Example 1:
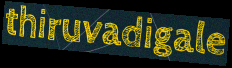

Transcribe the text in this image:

thiruvadigale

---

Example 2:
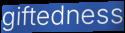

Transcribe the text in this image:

giftedness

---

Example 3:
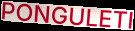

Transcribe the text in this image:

PONGULETI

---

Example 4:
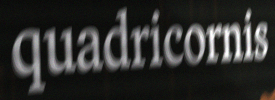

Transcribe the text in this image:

quadricornis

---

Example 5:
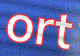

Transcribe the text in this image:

ort